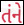
તંને